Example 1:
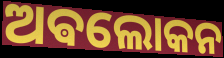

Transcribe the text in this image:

ଅଵଲୋକନ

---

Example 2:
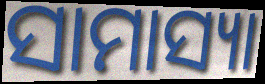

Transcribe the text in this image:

ସାମାସ୍ୟା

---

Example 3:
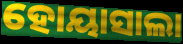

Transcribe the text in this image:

ହୋୟାସାଲା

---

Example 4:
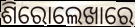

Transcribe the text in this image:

ଶିରୋଲେଖାରେ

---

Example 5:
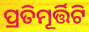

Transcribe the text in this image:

ପ୍ରତିମୂର୍ତ୍ତିଟି